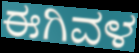
ಈಗಿವಳ